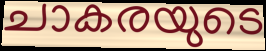
ചാകരയുടെ